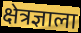
क्षेत्रज्ञाला